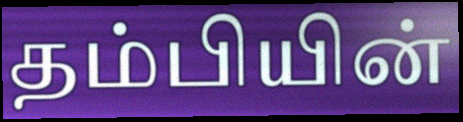
தம்பியின்